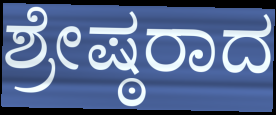
ಶ್ರೇಷ್ಠರಾದ